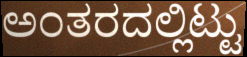
ಅಂತರದಲ್ಲಿಟ್ಟು